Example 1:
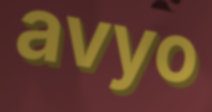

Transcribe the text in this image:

avyo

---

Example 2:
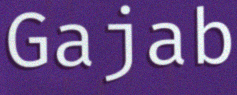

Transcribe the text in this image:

Gajab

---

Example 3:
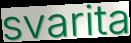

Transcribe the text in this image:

svarita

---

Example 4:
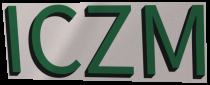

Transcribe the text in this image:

ICZM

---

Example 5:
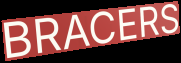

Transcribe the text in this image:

BRACERS